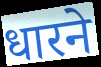
धारने